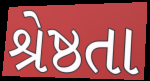
શ્રેષ્ઠતા